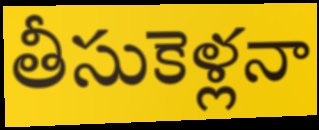
తీసుకెళ్లనా